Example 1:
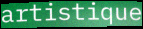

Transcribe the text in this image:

artistique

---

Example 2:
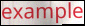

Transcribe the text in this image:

example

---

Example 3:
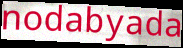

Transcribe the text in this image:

nodabyada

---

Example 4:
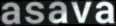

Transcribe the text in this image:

asava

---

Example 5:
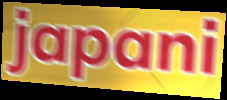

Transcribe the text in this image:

japani